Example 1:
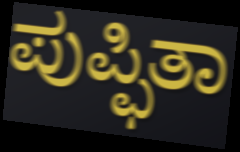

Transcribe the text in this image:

ಪುಪ್ಫಿತಾ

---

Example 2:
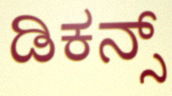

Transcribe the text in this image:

ಡಿಕನ್ಸ್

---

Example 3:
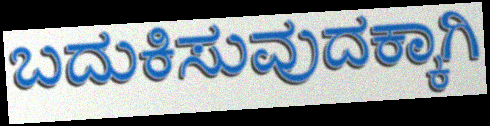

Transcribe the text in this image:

ಬದುಕಿಸುವುದಕ್ಕಾಗಿ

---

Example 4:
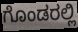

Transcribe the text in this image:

ಗೊಂಡರಲ್ಲಿ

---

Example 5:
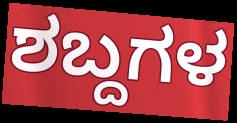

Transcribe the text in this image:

ಶಬ್ದಗಳ